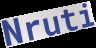
Nruti